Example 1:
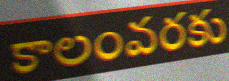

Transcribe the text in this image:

కాలంవరకు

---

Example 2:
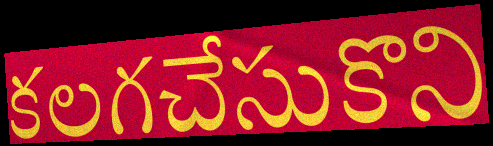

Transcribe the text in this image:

కలగచేసుకొని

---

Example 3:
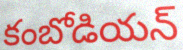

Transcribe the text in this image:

కంబోడియన్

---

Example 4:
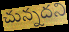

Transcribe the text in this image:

చున్నదని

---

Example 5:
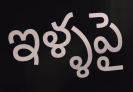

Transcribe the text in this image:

ఇళ్ళపై